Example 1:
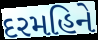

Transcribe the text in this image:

દરમહિને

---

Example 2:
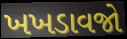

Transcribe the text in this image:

ખખડાવજો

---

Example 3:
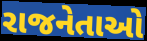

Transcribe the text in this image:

રાજનેતાઓ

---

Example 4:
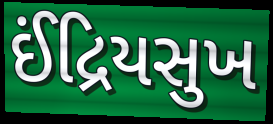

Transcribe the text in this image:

ઈંદ્રિયસુખ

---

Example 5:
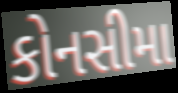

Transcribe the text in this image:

કોનસીમા